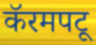
कॅरमपटू